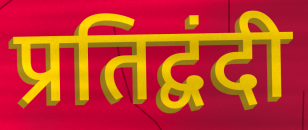
प्रतिद्वंदी